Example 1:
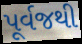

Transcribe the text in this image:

પૂર્વજથી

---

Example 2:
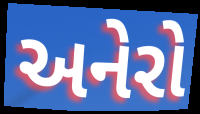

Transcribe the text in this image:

અનેરો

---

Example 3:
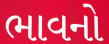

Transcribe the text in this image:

ભાવનો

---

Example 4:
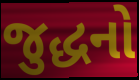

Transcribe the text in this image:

જુદ્ધનો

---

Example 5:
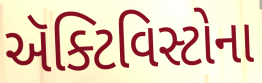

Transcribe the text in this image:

ઍક્ટિવિસ્ટોના